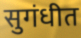
सुगंधीत